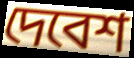
দেবেশ